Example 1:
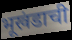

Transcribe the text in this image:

भूखंडाची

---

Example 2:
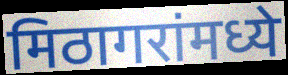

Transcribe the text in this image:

मिठागरांमध्ये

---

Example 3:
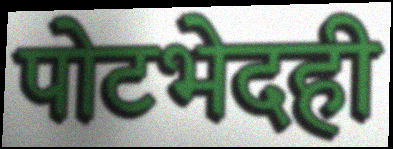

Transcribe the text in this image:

पोटभेदही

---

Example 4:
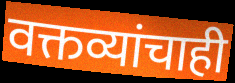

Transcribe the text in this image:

वक्तव्यांचाही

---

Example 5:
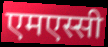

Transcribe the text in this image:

एमएस्सी